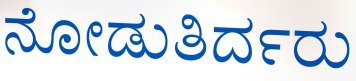
ನೋಡುತಿರ್ದರು